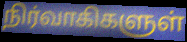
நிர்வாகிகளுள்